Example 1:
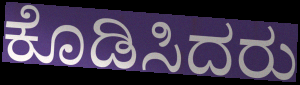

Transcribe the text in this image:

ಕೊಡಿಸಿದರು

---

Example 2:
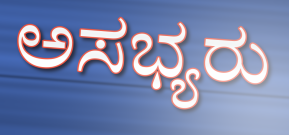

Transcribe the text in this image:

ಅಸಭ್ಯರು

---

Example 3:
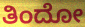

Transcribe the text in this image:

ತಿಂದೋ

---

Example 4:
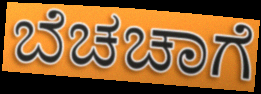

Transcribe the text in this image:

ಬೆಚಚಾಗೆ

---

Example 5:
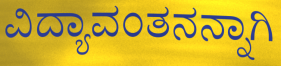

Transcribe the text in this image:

ವಿದ್ಯಾವಂತನನ್ನಾಗಿ